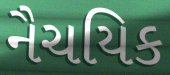
નૈચયિક